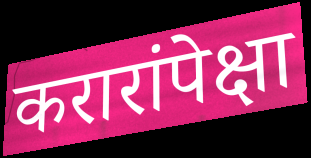
करारांपेक्षा